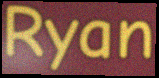
Ryan